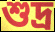
শুদ্ৰ